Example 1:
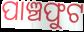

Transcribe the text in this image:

ପାଞ୍ଚଫୁଟ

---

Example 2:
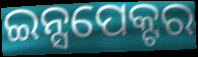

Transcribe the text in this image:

ଇନ୍ସପେକ୍ଟର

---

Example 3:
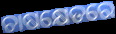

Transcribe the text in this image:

ଚାଷକ୍ଷେତରେ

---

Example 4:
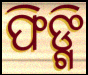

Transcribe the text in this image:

ଫିଙ୍ଗି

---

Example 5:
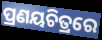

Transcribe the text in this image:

ପ୍ରଣୟଚିତ୍ରରେ